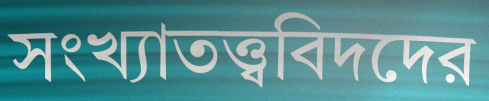
সংখ্যাতত্ত্ববিদদের